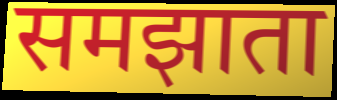
समझाता